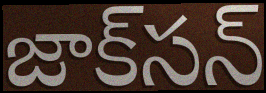
జాక్‌సన్